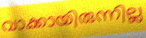
വാക്കായിരുന്നില്ല